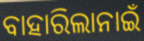
ବାହାରିଲାନାଇଁ